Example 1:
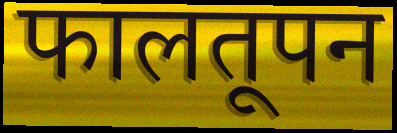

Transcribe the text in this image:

फालतूपन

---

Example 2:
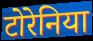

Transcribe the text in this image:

टोरेनिया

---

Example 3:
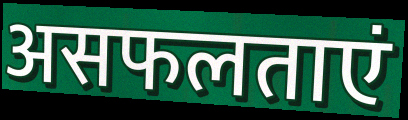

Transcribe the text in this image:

असफलताएं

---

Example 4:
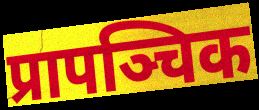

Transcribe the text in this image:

प्रापञ्चिक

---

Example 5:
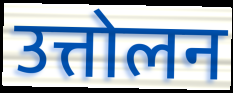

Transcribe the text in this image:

उत्तोलन